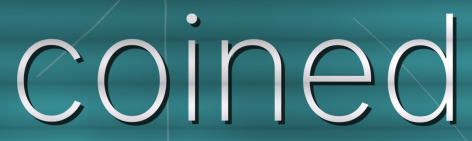
coined